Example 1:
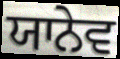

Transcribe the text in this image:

ਯਾਨੇਵ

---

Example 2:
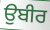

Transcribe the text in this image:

ਉਬੀਰ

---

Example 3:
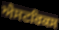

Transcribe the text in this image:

ਐਸਟਰਿਕਸ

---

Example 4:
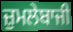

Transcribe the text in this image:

ਜ਼ੁਮਲੇਬਾਜੀ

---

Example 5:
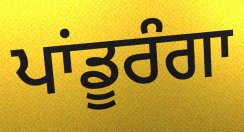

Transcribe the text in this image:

ਪਾਂਡੂਰੰਗਾ